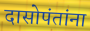
दासोपंतांना